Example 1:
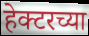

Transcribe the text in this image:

हेक्टरच्या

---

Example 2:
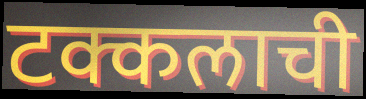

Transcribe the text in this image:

टक्कलाची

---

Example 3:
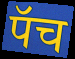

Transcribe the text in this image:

पॅच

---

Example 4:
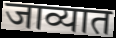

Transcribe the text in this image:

जाव्यात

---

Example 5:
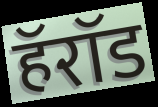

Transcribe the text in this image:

हॅरॉड